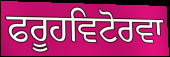
ਫਰੂਹਵਿਟੋਰਵਾ